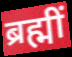
ब्रह्मीं